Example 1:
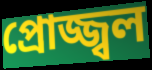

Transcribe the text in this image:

প্ৰোজ্জ্বল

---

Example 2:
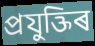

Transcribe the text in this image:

প্ৰযুক্তিৰ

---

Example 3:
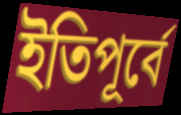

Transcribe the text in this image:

ইতিপূৰ্বে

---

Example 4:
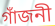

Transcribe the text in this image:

গাঁজনী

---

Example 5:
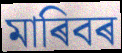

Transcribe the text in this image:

মাৰিবৰ